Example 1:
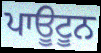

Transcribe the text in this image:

ਪਾਊਟੂਨ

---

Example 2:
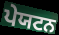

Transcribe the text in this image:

ਪੇਯਟਨ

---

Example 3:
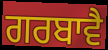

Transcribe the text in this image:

ਗਰਬਾਵੈ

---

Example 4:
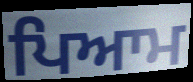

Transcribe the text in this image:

ਪਿਆਮ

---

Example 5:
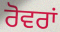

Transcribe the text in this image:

ਰੋਵਰਾਂ